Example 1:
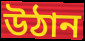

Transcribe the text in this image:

উঠান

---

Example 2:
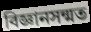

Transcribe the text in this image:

বিজ্ঞানসন্মত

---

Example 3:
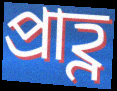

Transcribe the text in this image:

প্ৰাহ্ণ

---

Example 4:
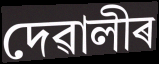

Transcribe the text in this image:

দেৱালীৰ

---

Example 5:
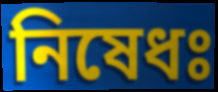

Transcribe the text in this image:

নিষেধঃ